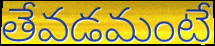
తేవడమంటే